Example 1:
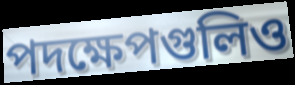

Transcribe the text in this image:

পদক্ষেপগুলিও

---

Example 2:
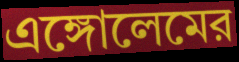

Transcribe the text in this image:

এঙ্গোলেমের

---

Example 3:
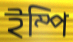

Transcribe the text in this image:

ইম্পি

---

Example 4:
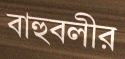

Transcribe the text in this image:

বাহুবলীর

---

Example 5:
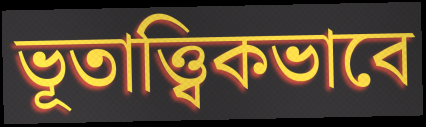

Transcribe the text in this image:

ভূতাত্ত্বিকভাবে